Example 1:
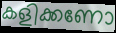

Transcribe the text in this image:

കളിക്കണോ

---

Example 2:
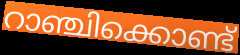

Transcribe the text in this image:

റാഞ്ചിക്കൊണ്ട്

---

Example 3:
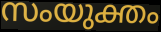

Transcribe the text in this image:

സംയുക്തം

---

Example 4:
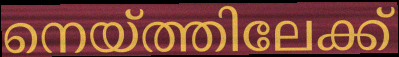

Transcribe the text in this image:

നെയ്ത്തിലേക്ക്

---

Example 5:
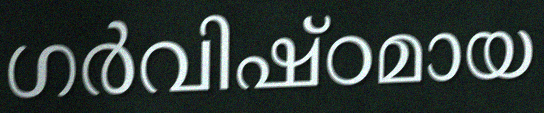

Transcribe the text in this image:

ഗർവിഷ്ഠമായ